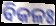
ବିକଳଃ